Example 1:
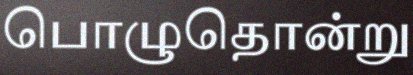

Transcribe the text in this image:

பொழுதொன்று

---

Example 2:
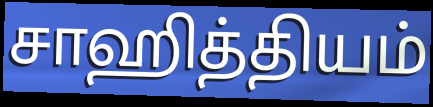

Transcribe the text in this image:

சாஹித்தியம்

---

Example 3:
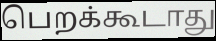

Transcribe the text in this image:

பெறக்கூடாது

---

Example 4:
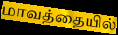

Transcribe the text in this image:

மாவத்தையில்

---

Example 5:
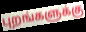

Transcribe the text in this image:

புறங்களுக்கு